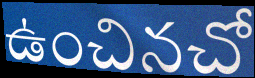
ఉంచినచో